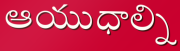
ఆయుధాల్ని